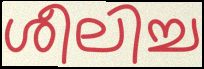
ശീലിച്ച